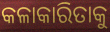
କଳାକାରିତାକୁ